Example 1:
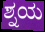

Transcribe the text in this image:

ಶ್ನಯ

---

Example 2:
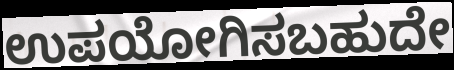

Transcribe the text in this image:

ಉಪಯೋಗಿಸಬಹುದೇ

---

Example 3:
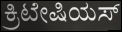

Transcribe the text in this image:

ಕ್ರಿಟೇಷಿಯಸ್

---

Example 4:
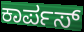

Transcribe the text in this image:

ಕಾರ್ಪಸ್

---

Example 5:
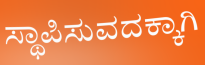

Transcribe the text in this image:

ಸ್ಥಾಪಿಸುವದಕ್ಕಾಗಿ